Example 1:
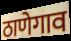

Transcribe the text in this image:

ठाणेगाव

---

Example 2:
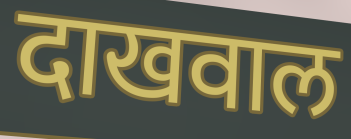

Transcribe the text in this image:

दाखवाल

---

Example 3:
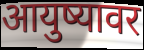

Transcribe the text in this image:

आयुष्यावर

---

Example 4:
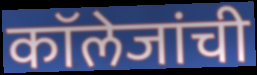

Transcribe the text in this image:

कॉलेजांची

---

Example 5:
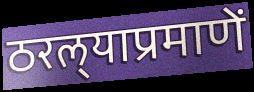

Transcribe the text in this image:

ठरल्याप्रमाणें